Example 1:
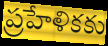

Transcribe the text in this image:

ప్రహేళికకు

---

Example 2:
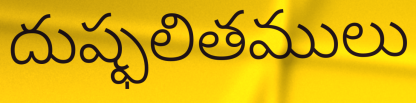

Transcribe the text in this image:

దుష్ఫలితములు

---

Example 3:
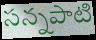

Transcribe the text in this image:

సన్నపాటి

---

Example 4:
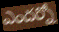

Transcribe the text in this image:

ఎందర్నో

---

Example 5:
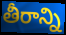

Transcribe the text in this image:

తీరాన్ని